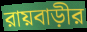
রায়বাড়ীর